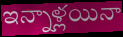
ఇన్నాళ్లయినా